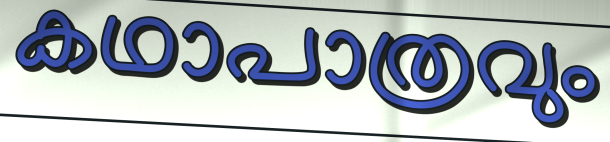
കഥാപാത്രവും